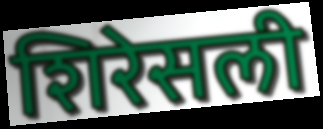
शिरेसली